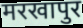
मरखापुर